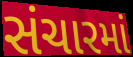
સંચારમાં